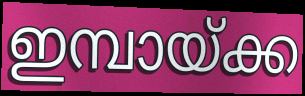
ഇമ്പായ്ക്ക